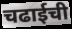
चढाईची